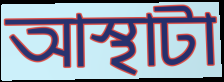
আস্থাটা